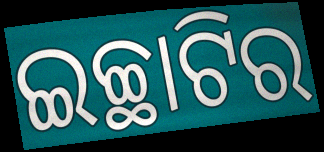
ଇଚ୍ଛାଟିର